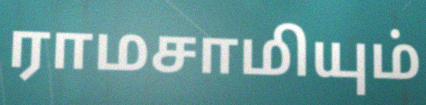
ராமசாமியும்